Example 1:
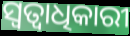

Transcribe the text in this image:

ସ୍ବତ୍ବାଧିକାରୀ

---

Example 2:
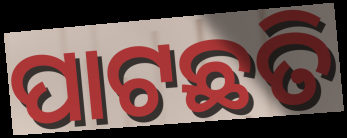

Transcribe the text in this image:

ପାଟଛତି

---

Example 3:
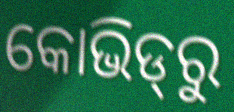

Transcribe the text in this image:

କୋଭିଡ୍‌ରୁ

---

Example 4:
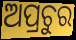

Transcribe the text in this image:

ଅପ୍ରଚୁର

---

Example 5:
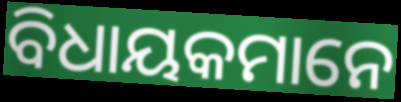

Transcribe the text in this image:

ବିଧାୟକମାନେ